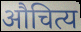
औचित्य